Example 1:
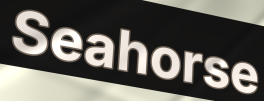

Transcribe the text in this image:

Seahorse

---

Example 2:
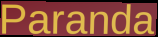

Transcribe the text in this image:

Paranda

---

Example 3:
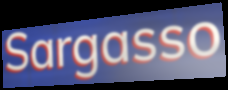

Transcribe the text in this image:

Sargasso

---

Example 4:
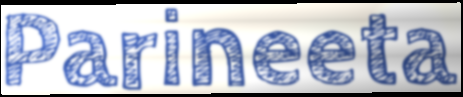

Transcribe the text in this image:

Parineeta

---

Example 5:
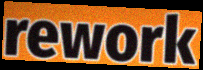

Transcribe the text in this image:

rework